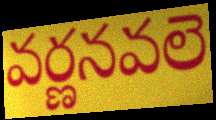
వర్ణనవలె